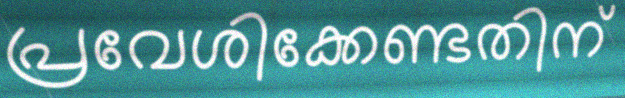
പ്രവേശിക്കേണ്ടതിന്